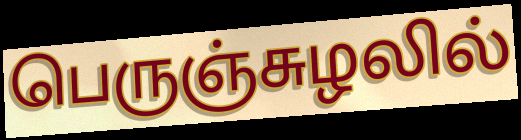
பெருஞ்சுழலில்